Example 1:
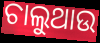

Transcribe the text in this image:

ଚାଲୁଥାଉ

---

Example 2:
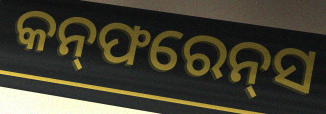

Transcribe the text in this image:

କନ୍‌ଫରେନ୍‌ସ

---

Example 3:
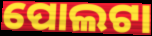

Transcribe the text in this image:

ପୋଲଟା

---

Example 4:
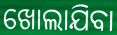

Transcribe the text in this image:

ଖୋଲାଯିବା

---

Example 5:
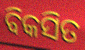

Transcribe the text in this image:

ବିକସିତ